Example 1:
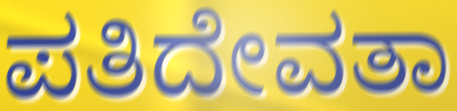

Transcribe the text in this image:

ಪತಿದೇವತಾ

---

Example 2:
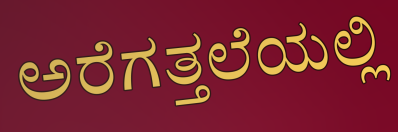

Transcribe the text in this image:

ಅರೆಗತ್ತಲೆಯಲ್ಲಿ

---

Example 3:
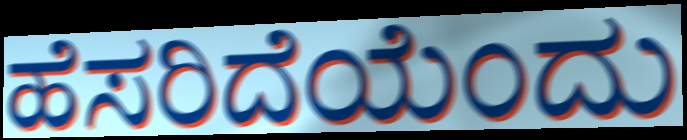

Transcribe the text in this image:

ಹೆಸರಿದೆಯೆಂದು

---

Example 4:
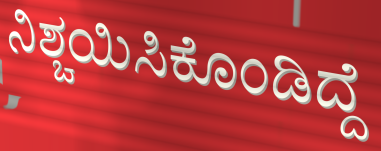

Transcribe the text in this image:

ನಿಶ್ಚಯಿಸಿಕೊಂಡಿದ್ದೆ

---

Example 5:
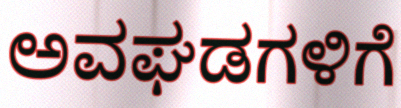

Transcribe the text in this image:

ಅವಘಡಗಳಿಗೆ